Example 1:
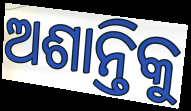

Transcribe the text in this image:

ଅଶାନ୍ତିକୁ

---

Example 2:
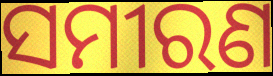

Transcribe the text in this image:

ସମୀରଣ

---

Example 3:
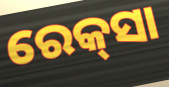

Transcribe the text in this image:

ରେକ୍‍ସା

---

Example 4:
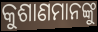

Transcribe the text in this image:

କୁଶାଣମାନଙ୍କୁ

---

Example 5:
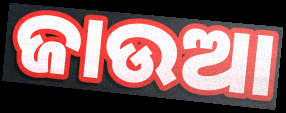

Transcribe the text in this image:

ଜାଉଆ